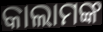
କାଲାମଙ୍କ